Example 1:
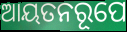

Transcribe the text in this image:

ଆୟତନରୂପେ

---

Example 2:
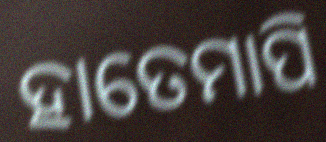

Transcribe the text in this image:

ହାତେମାପି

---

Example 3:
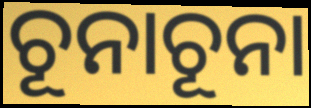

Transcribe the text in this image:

ଚୂନାଚୂନା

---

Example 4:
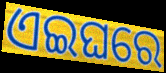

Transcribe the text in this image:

ଏଇଘରେ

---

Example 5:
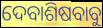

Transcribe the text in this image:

ଦେବାଶିଷବାବୁ